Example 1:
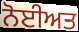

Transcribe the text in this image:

ਨੋਈਅਤ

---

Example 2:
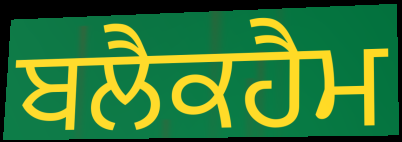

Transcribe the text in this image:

ਬਲੈਕਹੈਮ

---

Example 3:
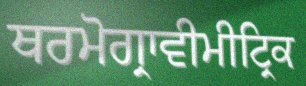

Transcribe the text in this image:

ਥਰਮੋਗ੍ਰਾਵੀਮੀਟ੍ਰਿਕ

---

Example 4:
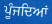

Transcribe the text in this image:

ਪੂੰਜਦਿਆਂ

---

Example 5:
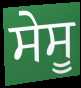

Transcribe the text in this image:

ਸੇਸੂ